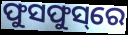
ଫୁସଫୁସ୍‌ରେ